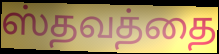
ஸ்தவத்தை